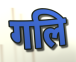
गलि